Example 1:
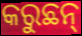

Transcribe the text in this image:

କରୁଛନ୍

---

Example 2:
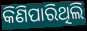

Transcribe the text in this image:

କିଣିପାରିଥିଲି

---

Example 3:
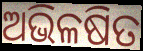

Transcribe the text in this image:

ଅଭିଳଷିତ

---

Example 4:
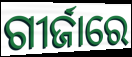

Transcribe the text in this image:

ଗୀର୍ଜାରେ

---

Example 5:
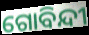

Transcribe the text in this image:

ଗୋବିନ୍ଦୀ